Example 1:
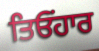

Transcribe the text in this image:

ਤਿਓਂਹਾਰ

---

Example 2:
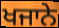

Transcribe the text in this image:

ਖਜਾਨੇ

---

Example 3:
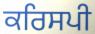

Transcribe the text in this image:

ਕਰਿਸਪੀ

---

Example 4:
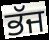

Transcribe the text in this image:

ਭੱਜ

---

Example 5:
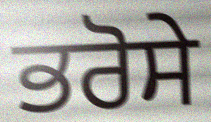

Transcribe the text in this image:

ਭਰੋਸੇ